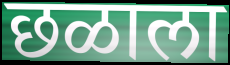
छळाला